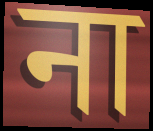
ना